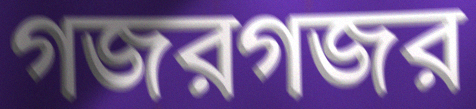
গজরগজর